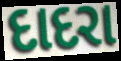
દાદરા